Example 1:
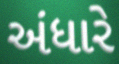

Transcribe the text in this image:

અંધારે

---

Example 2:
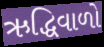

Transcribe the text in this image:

ઋદ્ધિવાળો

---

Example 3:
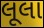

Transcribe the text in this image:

લૂલા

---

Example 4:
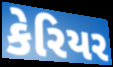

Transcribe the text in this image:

કેરિયર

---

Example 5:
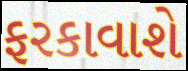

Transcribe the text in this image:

ફરકાવાશે